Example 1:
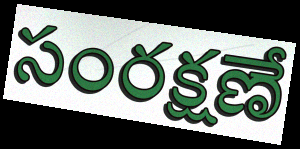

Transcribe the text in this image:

సంరక్షణే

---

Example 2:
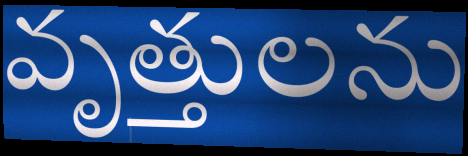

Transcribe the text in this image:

వృత్తులను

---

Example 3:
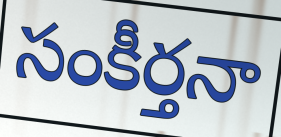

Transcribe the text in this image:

సంకీర్తనా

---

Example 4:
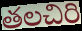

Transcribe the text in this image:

తలచిరి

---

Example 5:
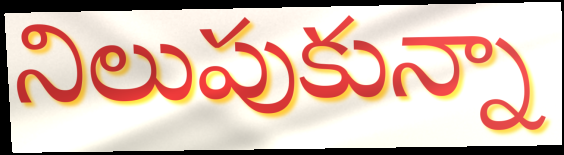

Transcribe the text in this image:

నిలుపుకున్నా